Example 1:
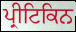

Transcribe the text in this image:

ਪ੍ਰੀਟਿਕਿਨ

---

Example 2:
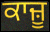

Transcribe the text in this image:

ਕਾਜ਼ੂ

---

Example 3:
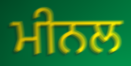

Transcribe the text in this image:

ਮੀਨਲ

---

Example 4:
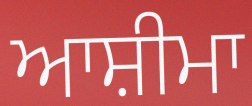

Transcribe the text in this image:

ਆਸ਼ੀਮਾ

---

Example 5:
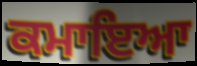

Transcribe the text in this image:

ਕਮਾਇਆ